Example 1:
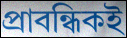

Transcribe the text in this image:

প্রাবন্ধিকই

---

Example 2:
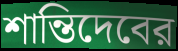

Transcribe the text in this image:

শান্তিদেবের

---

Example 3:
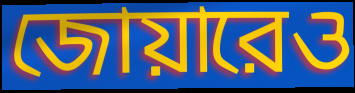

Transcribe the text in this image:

জোয়ারেও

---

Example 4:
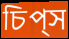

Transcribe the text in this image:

চিপ্‌স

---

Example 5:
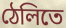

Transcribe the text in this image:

ঠেলিতে